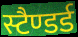
स्‍टैण्‍डर्ड